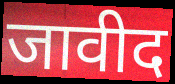
जावीद